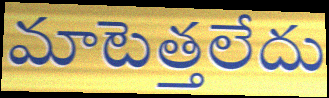
మాటెత్తలేదు